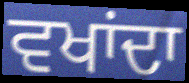
ਵਖਾਂਦਾ